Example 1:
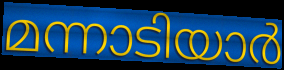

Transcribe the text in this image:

മന്നാടിയാർ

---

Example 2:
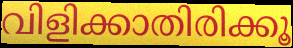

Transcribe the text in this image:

വിളിക്കാതിരിക്കൂ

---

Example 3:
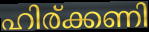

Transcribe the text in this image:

ഹിര്ക്കണി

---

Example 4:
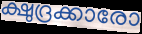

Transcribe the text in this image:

ക്ഷുദ്രക്കാരോ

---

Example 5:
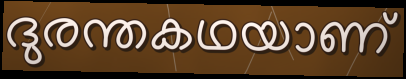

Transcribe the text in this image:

ദുരന്തകഥയാണ്